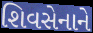
શિવસેનાને